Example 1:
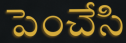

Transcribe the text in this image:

పెంచేసి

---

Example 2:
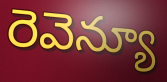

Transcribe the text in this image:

రెవెన్యూ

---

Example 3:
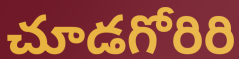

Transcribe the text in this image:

చూడగోరిరి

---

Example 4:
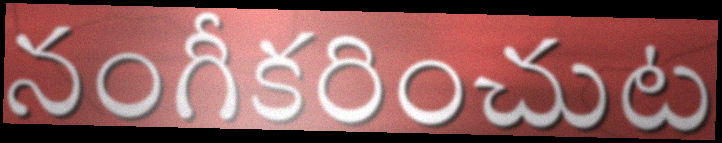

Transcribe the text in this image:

నంగీకరించుట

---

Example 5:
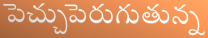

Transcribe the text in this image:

పెచ్చుపెరుగుతున్న